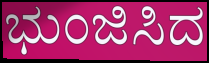
ಭುಂಜಿಸಿದ